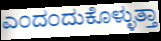
ಎಂದಂದುಕೊಳ್ಳುತ್ತಾ